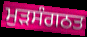
ਮੁੜਸੰਗਠਤ